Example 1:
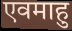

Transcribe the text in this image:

एवमाहु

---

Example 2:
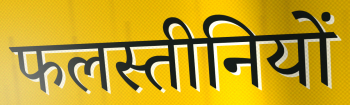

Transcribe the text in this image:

फलस्तीनियों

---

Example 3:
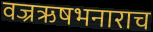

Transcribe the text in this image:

वज्रऋषभनाराच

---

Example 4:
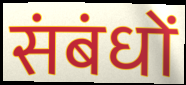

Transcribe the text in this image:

संबंधों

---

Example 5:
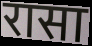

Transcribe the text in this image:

रासा